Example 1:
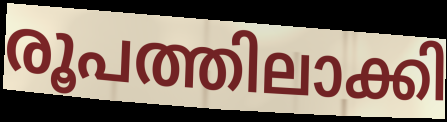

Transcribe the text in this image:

രൂപത്തിലാക്കി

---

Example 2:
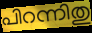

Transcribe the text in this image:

പിറന്നിതു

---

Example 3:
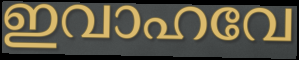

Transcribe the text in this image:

ഇവാഹവേ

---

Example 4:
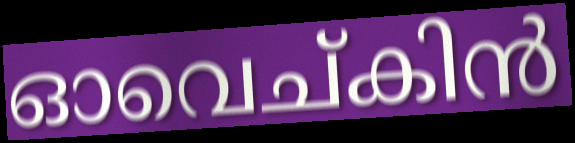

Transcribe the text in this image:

ഓവെച്കിൻ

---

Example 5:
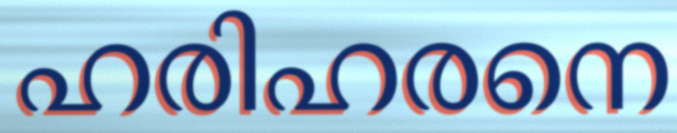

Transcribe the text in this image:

ഹരിഹരനെ